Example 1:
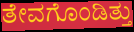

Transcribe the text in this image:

ತೇವಗೊಂಡಿತ್ತು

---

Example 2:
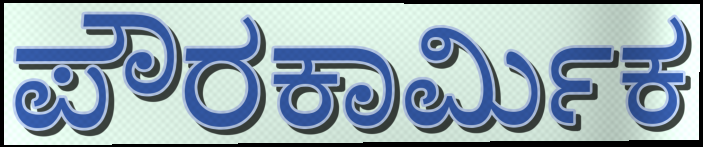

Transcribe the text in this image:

ಪೌರಕಾರ್ಮಿಕ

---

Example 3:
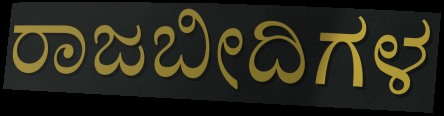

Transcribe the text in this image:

ರಾಜಬೀದಿಗಳ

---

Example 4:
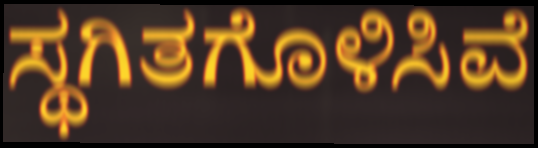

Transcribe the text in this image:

ಸ್ಥಗಿತಗೊಳಿಸಿವೆ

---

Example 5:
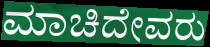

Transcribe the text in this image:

ಮಾಚಿದೇವರು